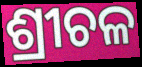
ଶ୍ରୀଚଳ